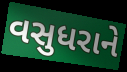
વસુધરાને